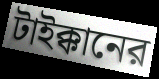
টাইক্কানের